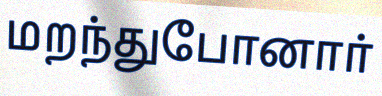
மறந்துபோனார்